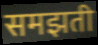
समझती